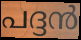
പദ്ദൻ